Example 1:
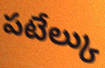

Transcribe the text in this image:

పటేల్కు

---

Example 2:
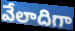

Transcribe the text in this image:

వేలాదిగా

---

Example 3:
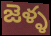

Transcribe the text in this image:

జెళ్ళ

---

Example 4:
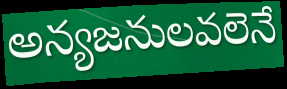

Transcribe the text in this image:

అన్యజనులవలెనే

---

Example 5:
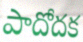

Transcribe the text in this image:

పాదోదక